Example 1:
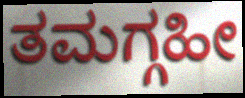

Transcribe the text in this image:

ತಮಗ್ಗಹೀ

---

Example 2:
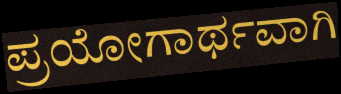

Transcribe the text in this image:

ಪ್ರಯೋಗಾರ್ಥವಾಗಿ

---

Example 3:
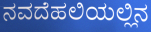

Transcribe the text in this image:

ನವದೆಹಲಿಯಲ್ಲಿನ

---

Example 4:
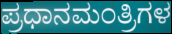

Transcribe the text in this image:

ಪ್ರಧಾನಮಂತ್ರಿಗಳ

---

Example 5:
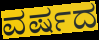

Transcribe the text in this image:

ವರ್ಷದ